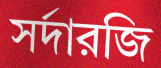
সর্দারজি